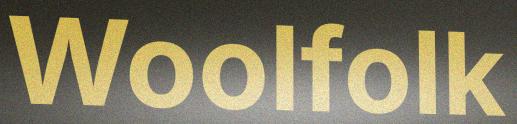
Woolfolk